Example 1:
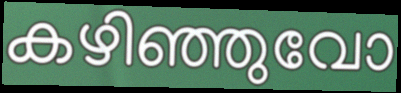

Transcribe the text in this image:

കഴിഞ്ഞുവോ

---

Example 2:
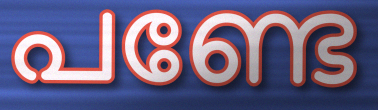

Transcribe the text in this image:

പണ്ടേ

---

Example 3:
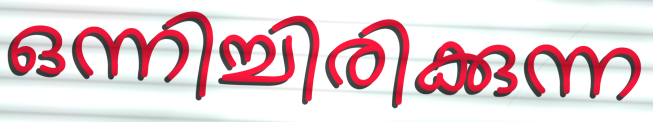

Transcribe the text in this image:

ഒന്നിച്ചിരിക്കുന്ന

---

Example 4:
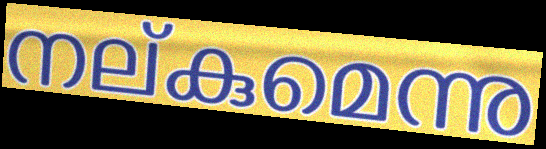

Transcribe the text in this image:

നല്‌കുമെന്നു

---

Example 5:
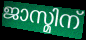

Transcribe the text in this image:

ജാസ്മിന്